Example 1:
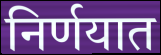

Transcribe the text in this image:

निर्णयात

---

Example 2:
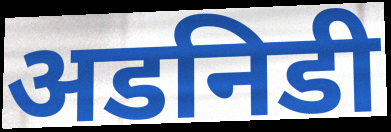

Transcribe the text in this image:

अडनिडी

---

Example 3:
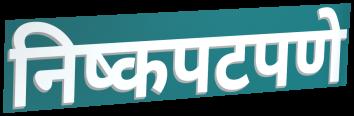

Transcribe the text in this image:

निष्कपटपणे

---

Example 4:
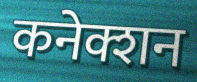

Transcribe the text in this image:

कनेक्‍शन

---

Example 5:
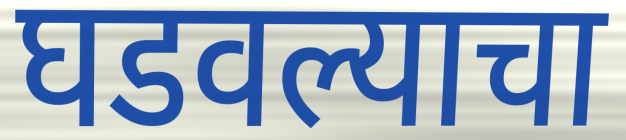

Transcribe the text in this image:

घडवल्याचा